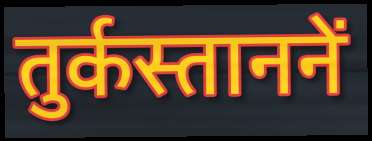
तुर्कस्ताननें